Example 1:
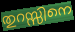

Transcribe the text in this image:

തുറസ്സിനെ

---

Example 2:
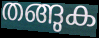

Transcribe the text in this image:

തങ്ങുക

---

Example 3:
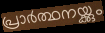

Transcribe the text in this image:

പ്രാർത്ഥനയ്ക്കും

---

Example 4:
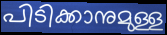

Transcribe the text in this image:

പിടിക്കാനുമുള്ള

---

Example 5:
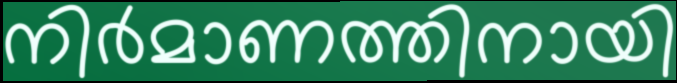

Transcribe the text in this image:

നിർമാണത്തിനായി